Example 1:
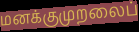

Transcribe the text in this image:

மனக்குமுறலைப்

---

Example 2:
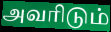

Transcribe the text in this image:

அவரிடும்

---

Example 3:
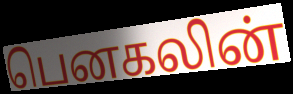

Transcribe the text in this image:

பெனகலின்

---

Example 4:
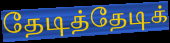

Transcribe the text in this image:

தேடித்தேடிக்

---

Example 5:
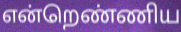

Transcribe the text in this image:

என்றெண்ணிய